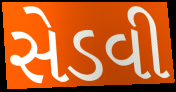
સેડવી